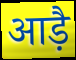
आड़ै